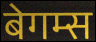
बेगम्स